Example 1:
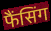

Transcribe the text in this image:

फैंसिंग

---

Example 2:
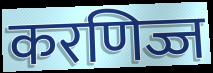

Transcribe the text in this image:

करणिज्ज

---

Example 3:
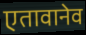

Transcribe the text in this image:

एतावानेव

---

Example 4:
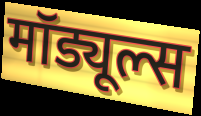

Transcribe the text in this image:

मॉड्यूल्स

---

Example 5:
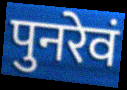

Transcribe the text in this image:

पुनरेवं